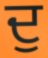
ਦੁ